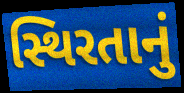
સ્થિરતાનું